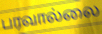
பரவால்லை